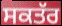
ਸਕਤੱਰ